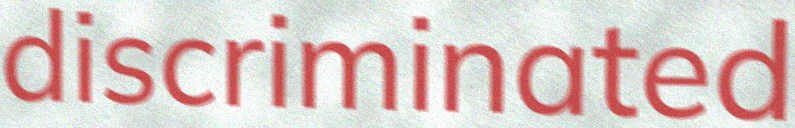
discriminated